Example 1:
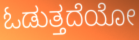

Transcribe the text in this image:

ಓಡುತ್ತದೆಯೋ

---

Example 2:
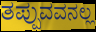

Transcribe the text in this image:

ತಪ್ಪುವವನಲ್ಲ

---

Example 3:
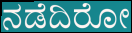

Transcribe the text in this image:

ನಡೆದಿರೋ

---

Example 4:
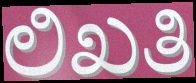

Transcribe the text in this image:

ಲಿಖತಿ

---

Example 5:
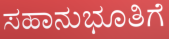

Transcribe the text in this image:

ಸಹಾನುಭೂತಿಗೆ